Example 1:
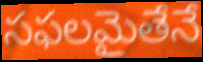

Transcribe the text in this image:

సఫలమైతేనే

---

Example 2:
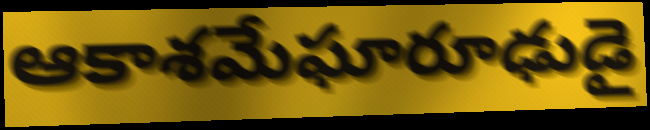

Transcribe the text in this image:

ఆకాశమేఘారూఢుడై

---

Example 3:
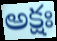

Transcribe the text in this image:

అక్షః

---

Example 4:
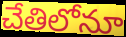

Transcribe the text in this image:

చేతిలోనూ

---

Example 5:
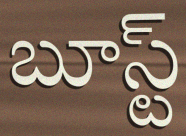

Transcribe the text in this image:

బూస్ట్